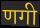
णगी